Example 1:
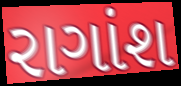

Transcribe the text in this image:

રાગાંશ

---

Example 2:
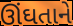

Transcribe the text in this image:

ઊંઘતાને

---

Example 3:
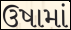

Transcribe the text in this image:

ઉષામાં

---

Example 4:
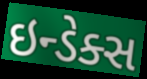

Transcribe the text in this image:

ઇન્ડેક્સ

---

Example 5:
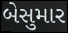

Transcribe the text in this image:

બેસુમાર